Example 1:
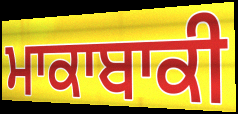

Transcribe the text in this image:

ਮਾਕਾਬਾਕੀ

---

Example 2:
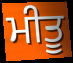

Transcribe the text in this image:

ਮੀਤੂ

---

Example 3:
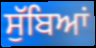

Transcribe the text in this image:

ਸੁੱਬਿਆਂ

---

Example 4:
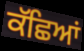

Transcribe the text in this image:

ਕੱਛਿਆਂ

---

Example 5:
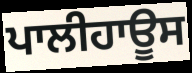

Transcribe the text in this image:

ਪਾਲੀਹਾਊਸ